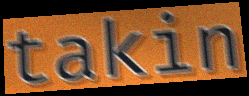
takin